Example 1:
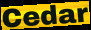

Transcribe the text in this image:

Cedar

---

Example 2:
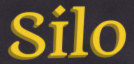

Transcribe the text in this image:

Silo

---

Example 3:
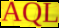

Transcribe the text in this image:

AQL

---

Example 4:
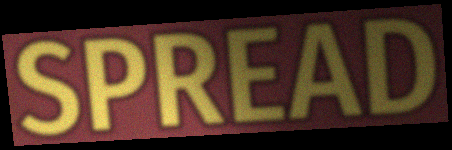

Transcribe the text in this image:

SPREAD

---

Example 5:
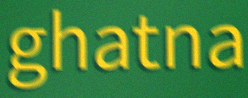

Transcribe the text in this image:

ghatna